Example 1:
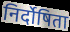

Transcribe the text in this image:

निर्दोषिता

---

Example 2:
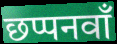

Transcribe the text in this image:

छप्पनवाँ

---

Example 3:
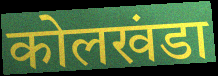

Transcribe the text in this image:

कोलखंडा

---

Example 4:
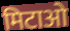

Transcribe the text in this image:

मिटाओ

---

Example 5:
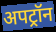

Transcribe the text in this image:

अपट्रॉन